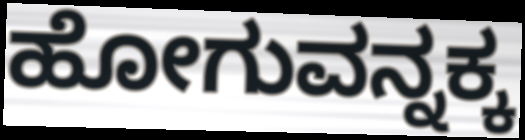
ಹೋಗುವನ್ನಕ್ಕ